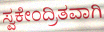
ಸ್ವಕೇಂದ್ರಿತವಾಗಿ